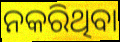
ନକରିଥିବା